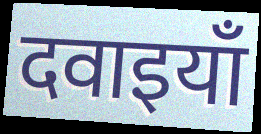
दवाइयाँ